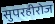
सुपरहीरोज